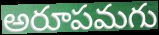
అరూపమగు